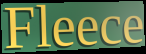
Fleece